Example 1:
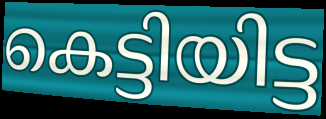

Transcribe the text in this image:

കെട്ടിയിട്ട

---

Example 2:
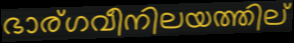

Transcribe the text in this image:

ഭാര്ഗവീനിലയത്തില്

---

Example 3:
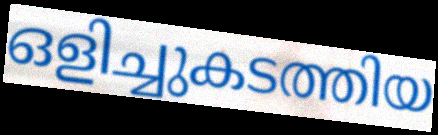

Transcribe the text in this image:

ഒളിച്ചുകടത്തിയ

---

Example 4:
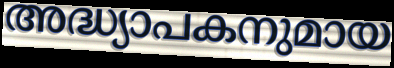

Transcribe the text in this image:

അദ്ധ്യാപകനുമായ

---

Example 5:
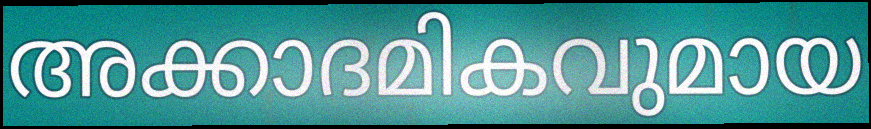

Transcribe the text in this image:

അക്കാദമികവുമായ